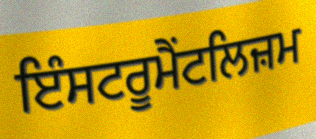
ਇੰਸਟਰੂਮੈਂਟਲਿਜ਼ਮ